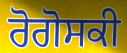
ਰੋਗੋਸਕੀ